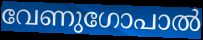
വേണുഗോപാൽ